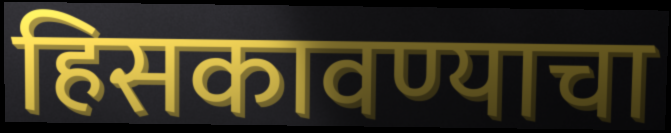
हिसकावण्याचा